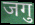
जगु